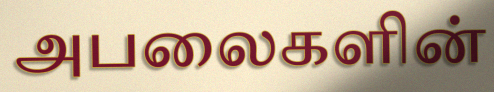
அபலைகளின்